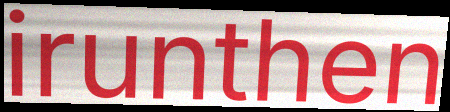
irunthen